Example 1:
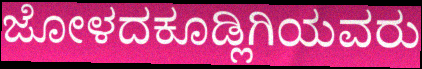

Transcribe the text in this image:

ಜೋಳದಕೂಡ್ಲಿಗಿಯವರು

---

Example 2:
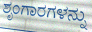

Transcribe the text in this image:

ಶೃಂಗಾರಗಳನ್ನು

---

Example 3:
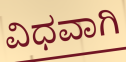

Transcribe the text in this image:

ವಿಧವಾಗಿ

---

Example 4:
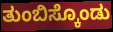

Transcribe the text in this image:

ತುಂಬಿಸ್ಕೊಂಡು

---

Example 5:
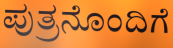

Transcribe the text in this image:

ಪುತ್ರನೊಂದಿಗೆ